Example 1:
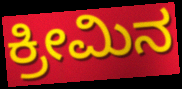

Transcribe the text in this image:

ಕ್ರೀಮಿನ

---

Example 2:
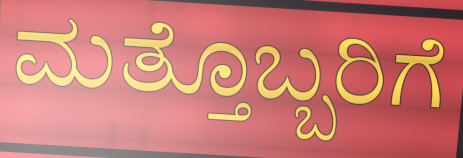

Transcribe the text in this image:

ಮತ್ತೊಬ್ಬರಿಗೆ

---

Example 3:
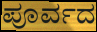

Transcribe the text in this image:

ಪೂರ್ವದ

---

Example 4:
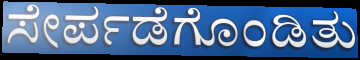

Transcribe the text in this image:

ಸೇರ್ಪಡೆಗೊಂಡಿತು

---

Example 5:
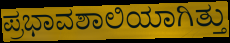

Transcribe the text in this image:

ಪ್ರಭಾವಶಾಲಿಯಾಗಿತ್ತು